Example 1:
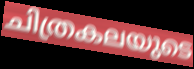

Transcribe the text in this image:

ചിത്രകലയുടെ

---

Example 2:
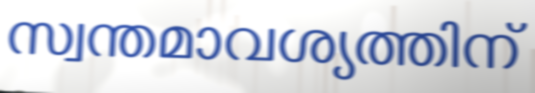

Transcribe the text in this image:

സ്വന്തമാവശ്യത്തിന്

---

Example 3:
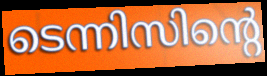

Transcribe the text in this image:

ടെന്നിസിന്റെ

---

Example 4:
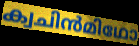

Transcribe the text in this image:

ക്വചിൻമിഥോ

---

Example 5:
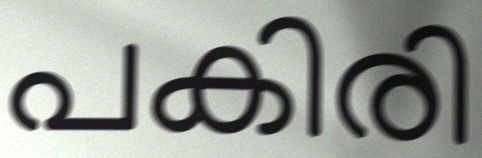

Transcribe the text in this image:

പകിരി